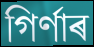
গিৰ্ণাৰ